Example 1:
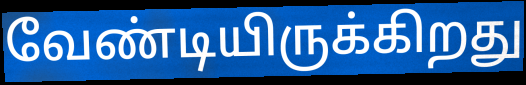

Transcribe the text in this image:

வேண்டியிருக்கிறது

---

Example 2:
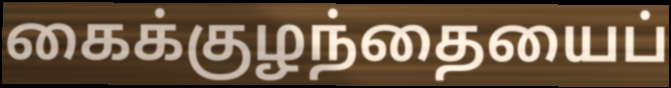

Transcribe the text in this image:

கைக்குழந்தையைப்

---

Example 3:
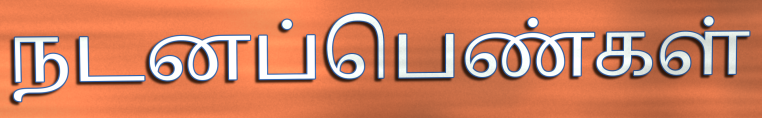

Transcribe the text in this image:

நடனப்பெண்கள்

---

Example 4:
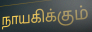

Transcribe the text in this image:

நாயகிக்கும்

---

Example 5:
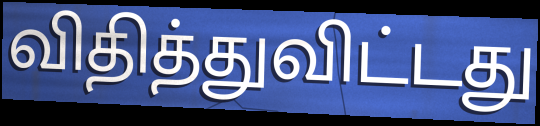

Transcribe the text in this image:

விதித்துவிட்டது